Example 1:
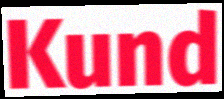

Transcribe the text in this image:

Kund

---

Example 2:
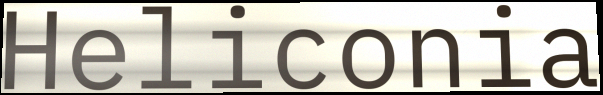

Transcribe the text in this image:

Heliconia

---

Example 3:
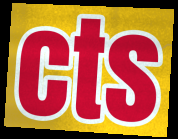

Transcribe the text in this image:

cts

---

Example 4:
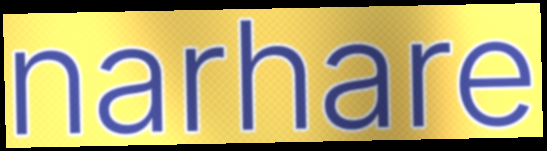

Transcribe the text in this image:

narhare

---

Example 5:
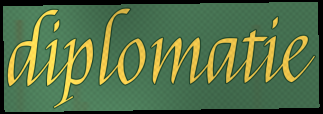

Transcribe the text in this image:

diplomatie